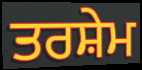
ਤਰਸ਼ੇਮ